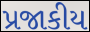
પ્રજાકીય